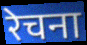
रेचना